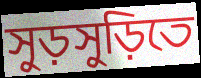
সুড়সুড়িতে